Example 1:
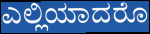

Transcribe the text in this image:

ಎಲ್ಲಿಯಾದರೊ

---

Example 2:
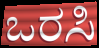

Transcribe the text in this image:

ಒರಸಿ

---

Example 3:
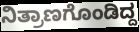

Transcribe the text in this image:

ನಿತ್ರಾಣಗೊಂಡಿದ್ದ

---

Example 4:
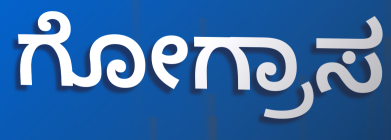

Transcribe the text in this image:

ಗೋಗ್ರಾಸ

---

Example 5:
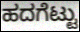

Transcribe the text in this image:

ಹದಗೆಟ್ಟು